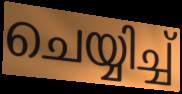
ചെയ്യിച്ച്